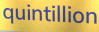
quintillion